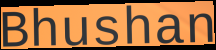
Bhushan